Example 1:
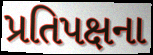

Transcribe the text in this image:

પ્રતિપક્ષના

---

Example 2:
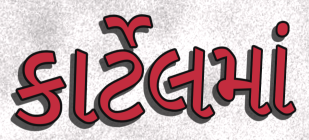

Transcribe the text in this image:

કાર્ટેલમાં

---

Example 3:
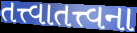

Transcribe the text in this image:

તત્ત્વાતત્ત્વના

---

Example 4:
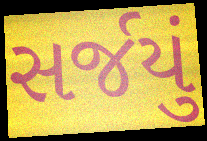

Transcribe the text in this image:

સર્જયું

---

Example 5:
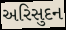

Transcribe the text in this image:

અરિસુદન